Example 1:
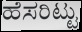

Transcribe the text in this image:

ಹೆಸರಿಟ್ಟು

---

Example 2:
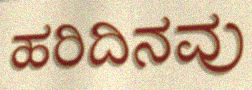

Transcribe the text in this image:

ಹರಿದಿನವು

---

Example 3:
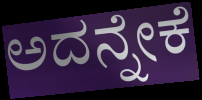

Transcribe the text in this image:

ಅದನ್ನೇಕೆ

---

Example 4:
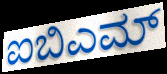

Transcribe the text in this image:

ಐಬಿಎಮ್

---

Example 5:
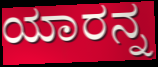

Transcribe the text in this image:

ಯಾರನ್ನ